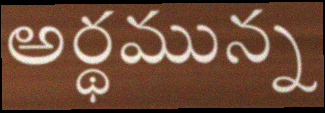
అర్థమున్న